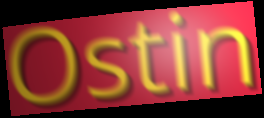
Ostin